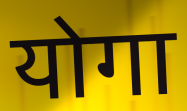
योगा